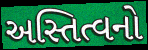
અસ્તિત્વનો